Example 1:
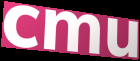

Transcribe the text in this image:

cmu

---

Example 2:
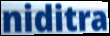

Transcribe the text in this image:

niditra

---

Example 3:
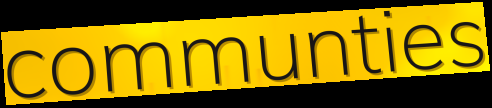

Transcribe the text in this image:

communties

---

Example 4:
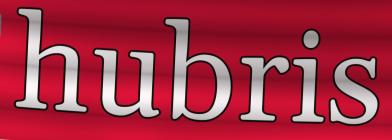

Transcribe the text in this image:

hubris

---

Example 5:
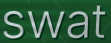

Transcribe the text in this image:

swat